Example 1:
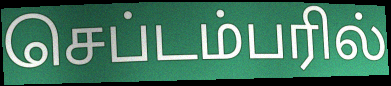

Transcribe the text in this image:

செப்டம்பரில்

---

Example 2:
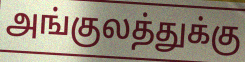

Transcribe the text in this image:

அங்குலத்துக்கு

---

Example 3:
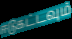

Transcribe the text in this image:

ஈடுகட்டவும்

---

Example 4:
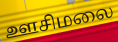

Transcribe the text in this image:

ஊசிமலை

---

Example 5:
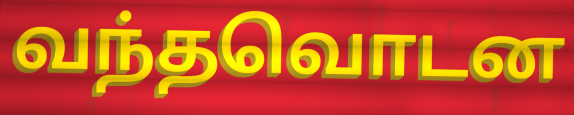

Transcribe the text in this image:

வந்தவொடன